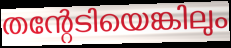
തന്റേടിയെങ്കിലും